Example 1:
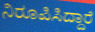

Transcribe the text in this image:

ನಿರೂಪಿಸಿದ್ದಾರೆ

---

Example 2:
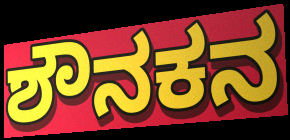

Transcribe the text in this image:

ಶೌನಕನ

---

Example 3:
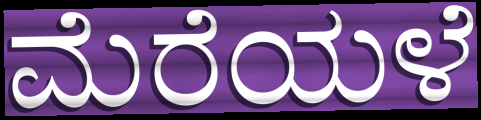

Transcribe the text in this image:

ಮೆರೆಯಳೆ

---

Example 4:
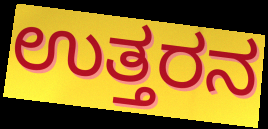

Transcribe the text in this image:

ಉತ್ತರನ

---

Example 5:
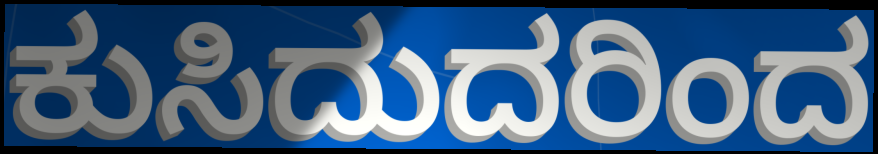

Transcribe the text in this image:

ಕುಸಿದುದರಿಂದ